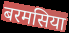
बरमसिया